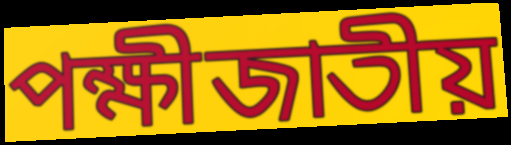
পক্ষীজাতীয়